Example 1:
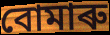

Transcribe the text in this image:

বোমাৰু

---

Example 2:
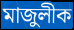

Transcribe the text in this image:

মাজুলীক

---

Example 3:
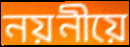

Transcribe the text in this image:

নয়নীয়ে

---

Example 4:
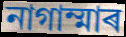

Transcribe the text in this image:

নাগাম্মাৰ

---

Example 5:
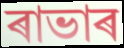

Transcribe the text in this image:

ৰাভাৰ